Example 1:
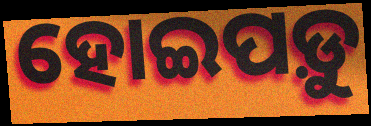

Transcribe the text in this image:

ହୋଇପଡ଼ୁ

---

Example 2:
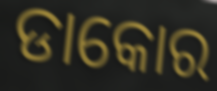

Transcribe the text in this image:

ଡାକୋର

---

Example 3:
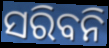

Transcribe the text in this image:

ସରିବନି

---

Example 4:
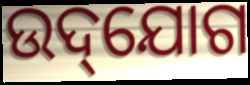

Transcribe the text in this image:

ଉଦ୍‌ଯୋଗ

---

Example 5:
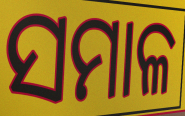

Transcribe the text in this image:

ସମାଳ